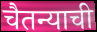
चैतन्याची